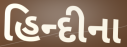
હિન્દીના